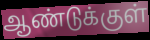
ஆண்டுக்குள்